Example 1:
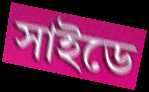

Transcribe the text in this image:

সাইডে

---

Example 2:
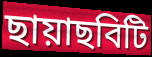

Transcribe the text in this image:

ছায়াছবিটি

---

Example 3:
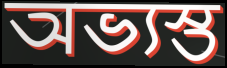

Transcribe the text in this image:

অভ্যস্ত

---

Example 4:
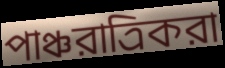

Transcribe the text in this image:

পাঞ্চরাত্রিকরা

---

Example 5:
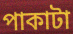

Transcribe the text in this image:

পাকাটা